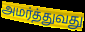
அமர்த்துவது